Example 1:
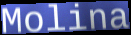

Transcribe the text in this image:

Molina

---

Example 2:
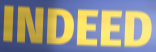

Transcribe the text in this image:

INDEED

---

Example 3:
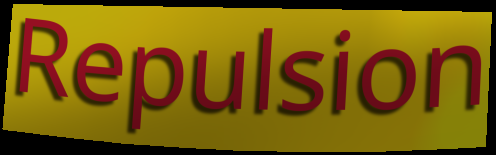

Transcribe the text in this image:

Repulsion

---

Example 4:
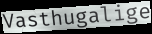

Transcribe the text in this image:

Vasthugalige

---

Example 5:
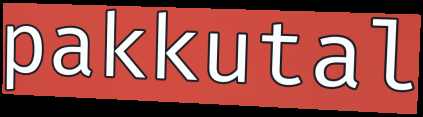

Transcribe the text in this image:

pakkutal